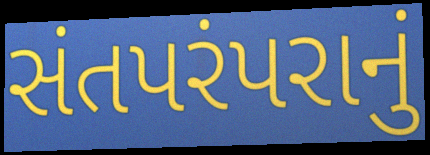
સંતપરંપરાનું